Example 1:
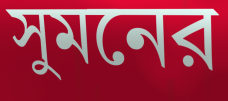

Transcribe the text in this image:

সুমনের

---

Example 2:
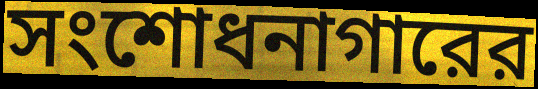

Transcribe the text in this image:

সংশোধনাগারের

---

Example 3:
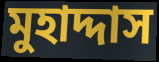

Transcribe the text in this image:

মুহাদ্দাস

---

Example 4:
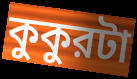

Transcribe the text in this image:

কুকুরটা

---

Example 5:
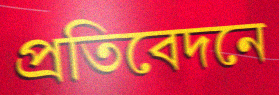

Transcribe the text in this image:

প্রতিবেদনে